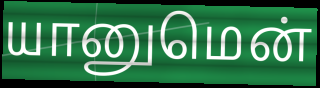
யானுமென்